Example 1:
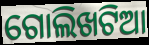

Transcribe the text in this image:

ଗୋଲିଖଟିଆ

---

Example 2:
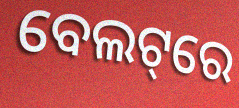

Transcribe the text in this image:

ବେଲଟ୍‌ରେ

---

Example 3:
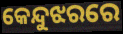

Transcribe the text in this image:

କେନ୍ଦୁଝରରେ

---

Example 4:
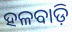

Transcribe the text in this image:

ହଳବାଡ଼ି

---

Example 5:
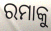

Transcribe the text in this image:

ରମାକୁ